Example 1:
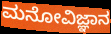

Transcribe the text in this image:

ಮನೋವಿಜ್ಞಾನ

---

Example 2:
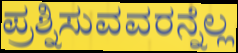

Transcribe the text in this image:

ಪ್ರಶ್ನಿಸುವವರನ್ನೆಲ್ಲ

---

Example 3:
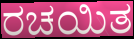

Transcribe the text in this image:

ರಚಯಿತ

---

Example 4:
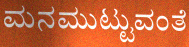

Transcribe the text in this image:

ಮನಮುಟ್ಟುವಂತೆ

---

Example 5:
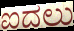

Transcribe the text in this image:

ಐದಲು